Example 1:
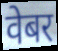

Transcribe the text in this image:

वेबर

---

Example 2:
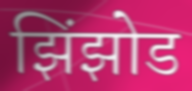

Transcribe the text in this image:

झिंझोड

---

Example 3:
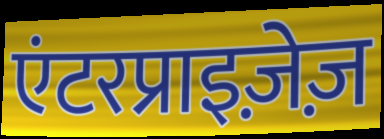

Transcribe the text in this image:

एंटरप्राइज़ेज़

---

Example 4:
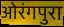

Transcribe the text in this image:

ओरंगपुरा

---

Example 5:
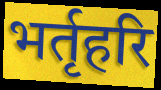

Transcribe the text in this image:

भर्तृहरि